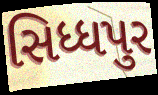
સિધ્ધપુર